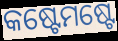
କଷ୍ଟେମଷ୍ଟେ